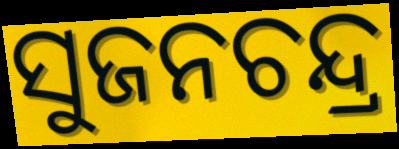
ସୁଜନଚନ୍ଦ୍ର